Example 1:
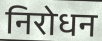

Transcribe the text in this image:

निरोधन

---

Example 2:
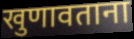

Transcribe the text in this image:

खुणावताना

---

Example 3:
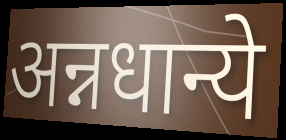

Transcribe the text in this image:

अन्नधान्ये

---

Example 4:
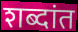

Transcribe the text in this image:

शब्दांत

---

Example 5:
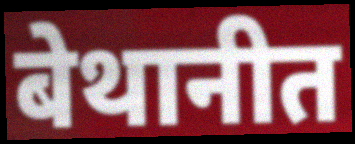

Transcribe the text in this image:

बेथानीत